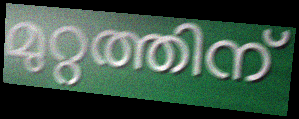
മുറ്റത്തിന്